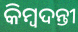
କିମ୍ଵଦନ୍ତୀ